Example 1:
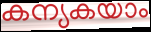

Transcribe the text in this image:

കന്യകയാം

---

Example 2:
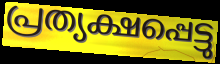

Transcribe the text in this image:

പ്രത്യക്ഷപ്പെട്ടു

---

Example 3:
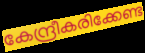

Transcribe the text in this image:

കേന്ദ്രീകരിക്കേണ്ട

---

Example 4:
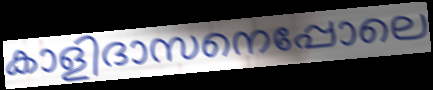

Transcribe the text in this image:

കാളിദാസനെപ്പോലെ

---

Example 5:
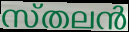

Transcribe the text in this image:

സ്‌തലൻ